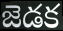
జెడక